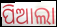
ପିଆଲା